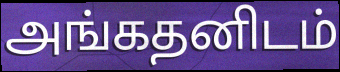
அங்கதனிடம்